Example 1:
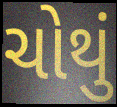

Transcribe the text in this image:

ચોથું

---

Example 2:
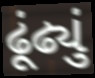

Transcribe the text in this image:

ઢૂંઢ્યું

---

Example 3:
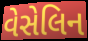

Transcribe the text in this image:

વેસેલિન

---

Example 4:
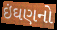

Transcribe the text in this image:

ઇંઘણનો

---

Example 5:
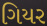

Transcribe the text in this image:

ગિયર